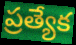
ప్రత్యేక